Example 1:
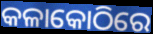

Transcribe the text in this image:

କଳାକୋଠିରେ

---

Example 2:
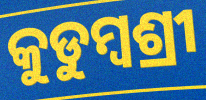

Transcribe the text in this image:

କୁଡୁମ୍ବଶ୍ରୀ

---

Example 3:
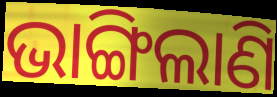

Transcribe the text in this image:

ଭାଙ୍ଗିଲାଣି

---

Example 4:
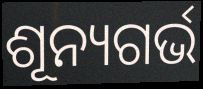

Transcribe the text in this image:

ଶୂନ୍ୟଗର୍ଭ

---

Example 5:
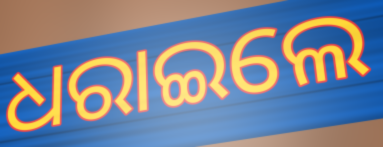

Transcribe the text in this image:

ଧରାଇଲେ